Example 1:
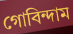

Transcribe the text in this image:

গোবিন্দাম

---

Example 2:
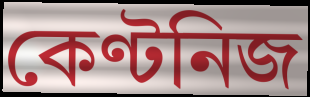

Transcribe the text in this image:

কেণ্টনিজ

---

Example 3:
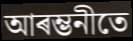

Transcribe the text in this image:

আৰম্ভনীতে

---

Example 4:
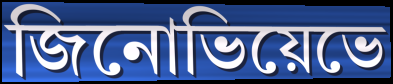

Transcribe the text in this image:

জিনোভিয়েভে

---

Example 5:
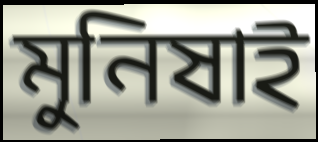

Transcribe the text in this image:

মুনিষাই